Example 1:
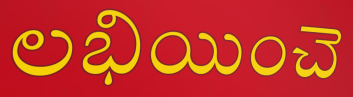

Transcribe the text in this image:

లభియించె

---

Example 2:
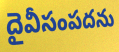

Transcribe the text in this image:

దైవీసంపదను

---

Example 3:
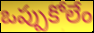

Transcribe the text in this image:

ఒప్పుకోలేం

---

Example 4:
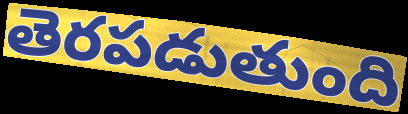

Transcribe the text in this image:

తెరపడుతుంది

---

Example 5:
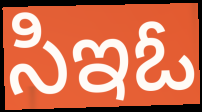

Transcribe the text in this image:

సిఇఓ